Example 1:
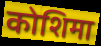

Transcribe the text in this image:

कोशिमा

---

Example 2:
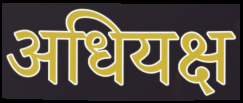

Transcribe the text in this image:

अधियक्ष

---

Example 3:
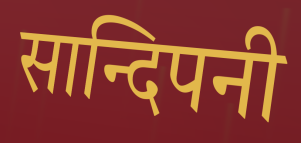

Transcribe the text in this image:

सान्दिपनी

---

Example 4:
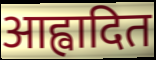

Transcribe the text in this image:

आह्वादित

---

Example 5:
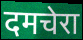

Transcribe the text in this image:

दमचेरा